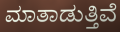
ಮಾತಾಡುತ್ತಿವೆ